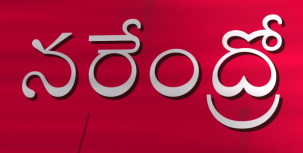
నరేంద్రో